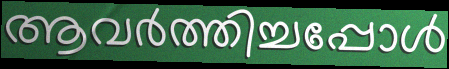
ആവർത്തിച്ചപ്പോൾ